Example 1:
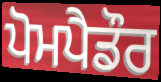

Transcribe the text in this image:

ਪੋਮਪੈਡੌਰ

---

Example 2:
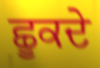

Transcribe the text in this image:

ਛੂਕਦੇ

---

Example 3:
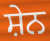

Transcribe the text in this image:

ਸ਼ੇਨ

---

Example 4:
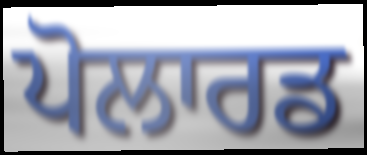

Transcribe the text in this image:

ਪੋਲਾਰਡ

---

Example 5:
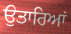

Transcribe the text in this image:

ਉਤਾਰਿਆਂ